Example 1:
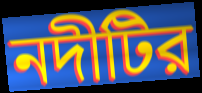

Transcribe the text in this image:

নদীটির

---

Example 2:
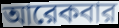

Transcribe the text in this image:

আরেকবার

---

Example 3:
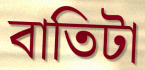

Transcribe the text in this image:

বাতিটা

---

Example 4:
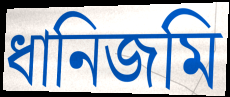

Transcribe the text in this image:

ধানিজমি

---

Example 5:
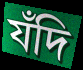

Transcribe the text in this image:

যঁদি